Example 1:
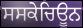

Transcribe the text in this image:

ਸਸਕੇਚਿਊਨ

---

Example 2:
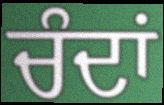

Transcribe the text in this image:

ਚੰਦਾਂ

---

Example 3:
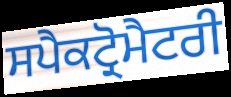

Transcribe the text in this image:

ਸਪੈਕਟ੍ਰੋਮੈਟਰੀ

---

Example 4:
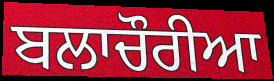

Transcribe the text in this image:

ਬਲਾਚੌਰੀਆ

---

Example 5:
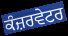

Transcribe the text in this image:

ਕੰਜ਼ਰਵੇਟਰ